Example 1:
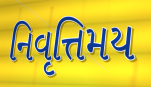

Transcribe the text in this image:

નિવૃત્તિમય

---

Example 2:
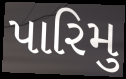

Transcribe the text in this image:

પારિમુ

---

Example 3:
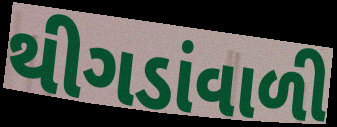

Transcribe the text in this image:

થીગડાંવાળી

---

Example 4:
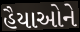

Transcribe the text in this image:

હૈયાઓને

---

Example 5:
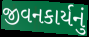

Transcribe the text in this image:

જીવનકાર્યનું